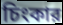
চিংকার